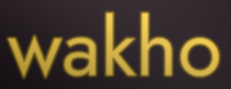
wakho